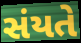
સંયતે